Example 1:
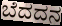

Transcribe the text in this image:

ಬೆದದನ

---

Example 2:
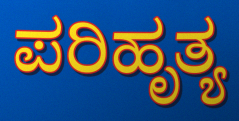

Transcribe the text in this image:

ಪರಿಹೃತ್ಯ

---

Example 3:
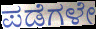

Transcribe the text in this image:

ಪಡೆಗಳೇ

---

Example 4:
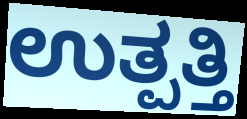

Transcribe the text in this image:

ಉತ್ಪತ್ತಿ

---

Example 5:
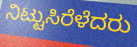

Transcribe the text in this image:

ನಿಟ್ಟುಸಿರೆಳೆದರು